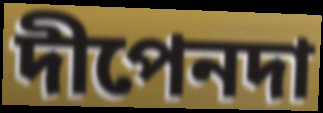
দীপেনদা